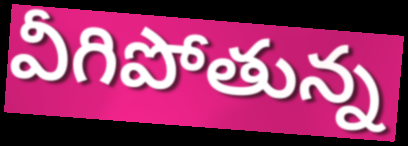
వీగిపోతున్న